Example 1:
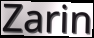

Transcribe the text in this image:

Zarin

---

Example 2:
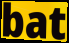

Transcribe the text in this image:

bat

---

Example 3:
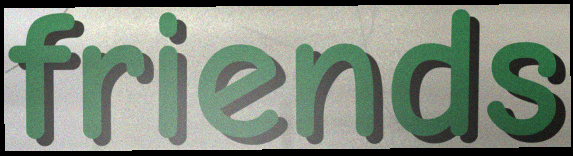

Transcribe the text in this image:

friends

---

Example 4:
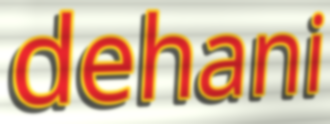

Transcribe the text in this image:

dehani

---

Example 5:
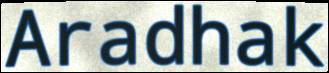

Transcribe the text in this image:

Aradhak